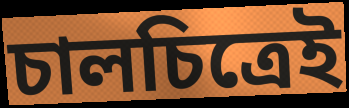
চালচিত্রেই